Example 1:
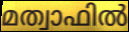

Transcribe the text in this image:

മത്വാഫിൽ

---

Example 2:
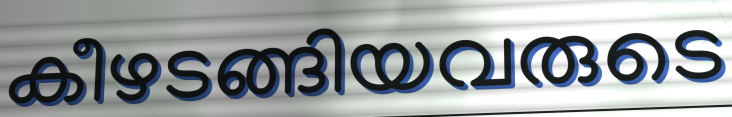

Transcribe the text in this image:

കീഴടങ്ങിയവരുടെ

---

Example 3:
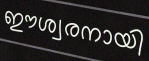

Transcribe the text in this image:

ഈശ്വരനായി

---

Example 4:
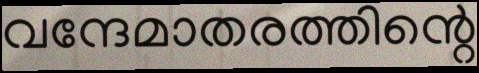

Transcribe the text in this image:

വന്ദേമാതരത്തിന്റെ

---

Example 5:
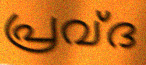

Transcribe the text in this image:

പ്രവ്ദ